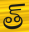
త్